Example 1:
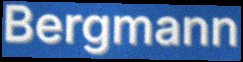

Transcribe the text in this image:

Bergmann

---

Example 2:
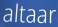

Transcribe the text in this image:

altaar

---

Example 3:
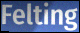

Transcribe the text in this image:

Felting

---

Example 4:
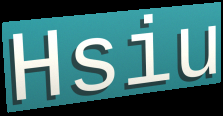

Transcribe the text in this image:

Hsiu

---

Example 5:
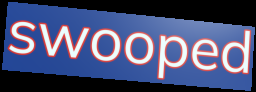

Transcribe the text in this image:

swooped